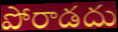
పోరాడదు